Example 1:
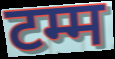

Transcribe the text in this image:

टम्म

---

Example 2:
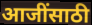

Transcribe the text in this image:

आजींसाठी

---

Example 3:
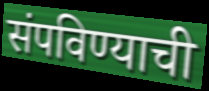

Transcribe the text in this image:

संपविण्याची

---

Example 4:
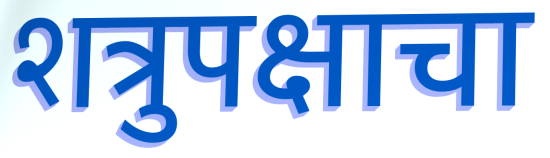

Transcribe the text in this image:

शत्रुपक्षाचा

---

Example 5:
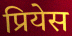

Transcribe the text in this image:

प्रियेस